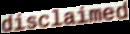
disclaimed